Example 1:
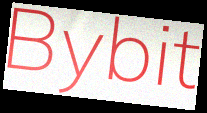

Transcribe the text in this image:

Bybit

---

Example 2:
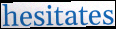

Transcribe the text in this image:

hesitates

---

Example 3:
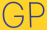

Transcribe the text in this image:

GP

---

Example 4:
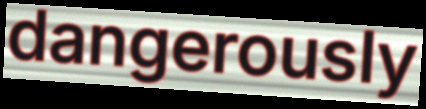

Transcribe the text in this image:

dangerously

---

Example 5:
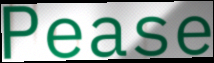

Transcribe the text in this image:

Pease